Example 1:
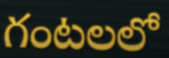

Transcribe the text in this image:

గంటలలో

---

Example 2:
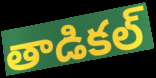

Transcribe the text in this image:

తాడికల్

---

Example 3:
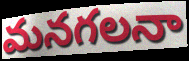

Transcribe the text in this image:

మనగలనా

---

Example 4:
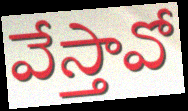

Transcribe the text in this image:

వేస్తావో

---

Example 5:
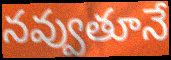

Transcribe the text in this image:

నవ్వుతూనే